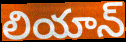
లియాన్